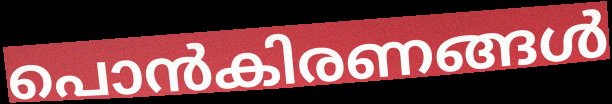
പൊൻകിരണങ്ങൾ